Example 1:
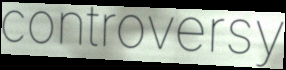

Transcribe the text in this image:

controversy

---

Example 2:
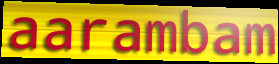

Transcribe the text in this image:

aarambam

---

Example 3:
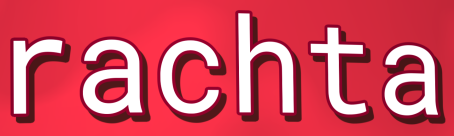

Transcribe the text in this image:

rachta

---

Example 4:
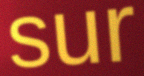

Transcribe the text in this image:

sur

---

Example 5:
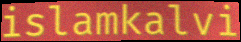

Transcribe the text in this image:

islamkalvi